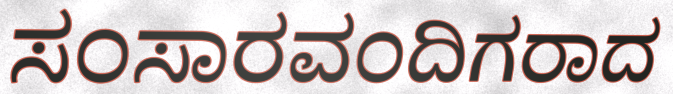
ಸಂಸಾರವಂದಿಗರಾದ